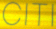
CITI